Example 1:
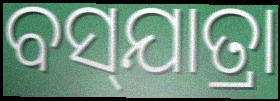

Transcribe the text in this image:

ବସ୍‌ଯାତ୍ରା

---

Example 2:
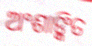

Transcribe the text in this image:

ଅଂଶାଙ୍କିତ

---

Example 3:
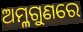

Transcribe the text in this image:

ଅମ୍ଳଗୁଣରେ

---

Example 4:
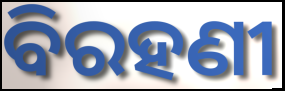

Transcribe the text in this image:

ବିରହଣୀ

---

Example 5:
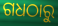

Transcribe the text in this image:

ଗଧଠାରୁ